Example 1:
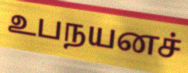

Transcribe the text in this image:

உபநயனச்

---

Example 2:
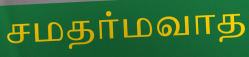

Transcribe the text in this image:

சமதர்மவாத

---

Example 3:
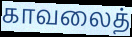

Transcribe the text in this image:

காவலைத்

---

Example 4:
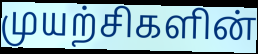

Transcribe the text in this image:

முயற்சிகளின்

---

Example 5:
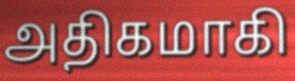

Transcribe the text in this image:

அதிகமாகி